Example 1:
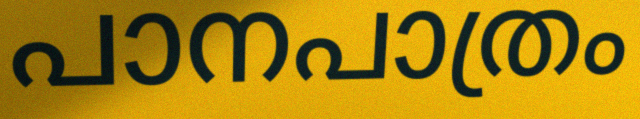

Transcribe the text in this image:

പാനപാത്രം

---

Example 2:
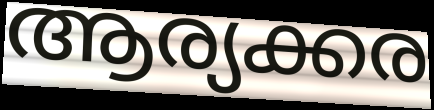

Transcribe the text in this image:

ആര്യക്കര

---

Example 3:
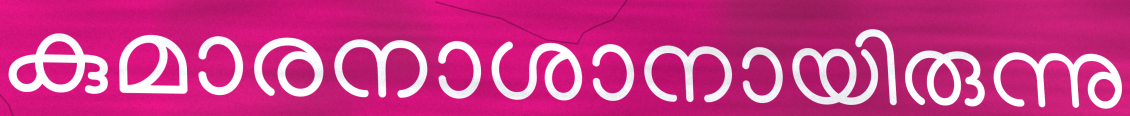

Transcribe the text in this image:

കുമാരനാശാനായിരുന്നു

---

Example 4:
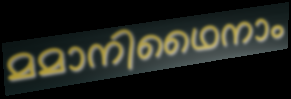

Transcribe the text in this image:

മമാനിഥൈനാം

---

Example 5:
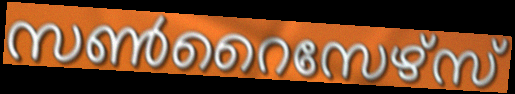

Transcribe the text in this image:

സൺറൈസേഴ്സ്